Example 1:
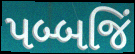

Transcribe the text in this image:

પબ્બજિં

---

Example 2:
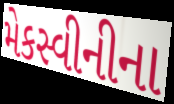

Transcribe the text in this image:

મેકસ્વીનીના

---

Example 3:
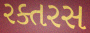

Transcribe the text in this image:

રક્તરસ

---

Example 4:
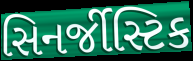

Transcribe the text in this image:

સિનર્જીસ્ટિક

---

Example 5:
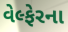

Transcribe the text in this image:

વેલ્ફેરના